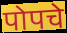
पोपचे